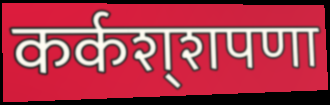
कर्कश्शपणा